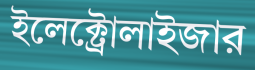
ইলেক্ট্রোলাইজার